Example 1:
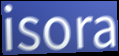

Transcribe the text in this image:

isora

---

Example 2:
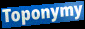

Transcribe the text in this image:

Toponymy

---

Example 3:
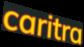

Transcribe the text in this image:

caritra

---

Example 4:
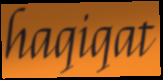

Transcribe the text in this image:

haqiqat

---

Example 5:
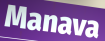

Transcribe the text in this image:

Manava